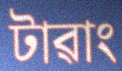
টাৱাং